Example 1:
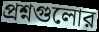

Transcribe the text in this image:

প্রশ্নগুলোর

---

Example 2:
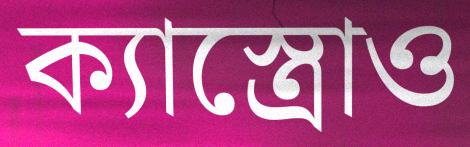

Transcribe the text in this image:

ক্যাস্ত্রোও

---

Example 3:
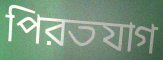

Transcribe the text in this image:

পিরতযাগ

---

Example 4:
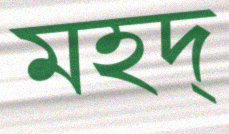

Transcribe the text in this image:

মহদ্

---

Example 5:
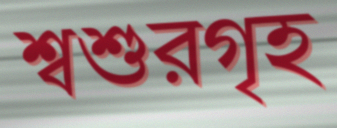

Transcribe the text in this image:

শ্বশুরগৃহ